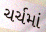
ચર્ચમાં